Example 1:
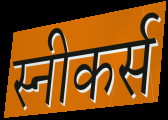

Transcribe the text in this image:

स्नीकर्स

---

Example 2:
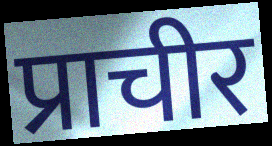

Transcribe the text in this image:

प्राचीर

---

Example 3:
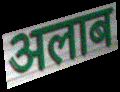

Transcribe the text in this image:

अलाब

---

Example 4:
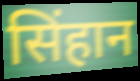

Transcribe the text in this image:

सिंहान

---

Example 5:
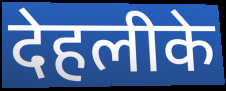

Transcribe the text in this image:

देहलीके